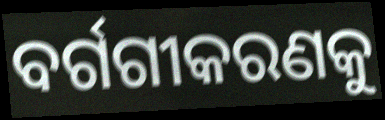
ବର୍ଗଗୀକରଣକୁ